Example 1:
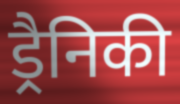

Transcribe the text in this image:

ड्रैनिकी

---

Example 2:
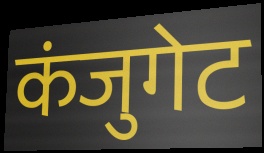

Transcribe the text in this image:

कंजुगेट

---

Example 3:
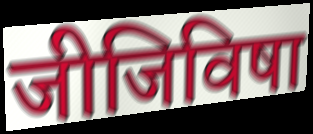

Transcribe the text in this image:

जीजिविषा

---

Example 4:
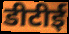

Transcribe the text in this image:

डीटीई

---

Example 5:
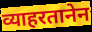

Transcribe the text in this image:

व्याहरतानेन